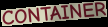
CONTAINER